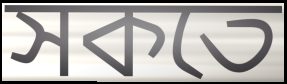
সকতে